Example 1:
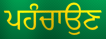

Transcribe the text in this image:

ਪਹੰਚਾਉਣ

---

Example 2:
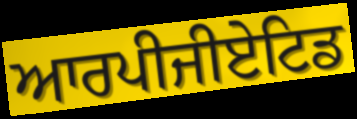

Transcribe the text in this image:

ਆਰਪੀਜੀਏਟਿਡ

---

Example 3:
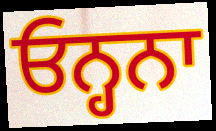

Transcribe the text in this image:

ਓਨ੍ਹਨਾ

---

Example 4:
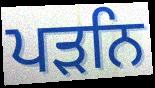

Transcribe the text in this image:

ਪੜਨਿ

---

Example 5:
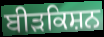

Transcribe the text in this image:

ਬੀੜਕਿਸ਼ਨ